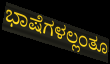
ಭಾಷೆಗಳಲ್ಲಂತೂ